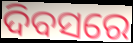
ଦିବସରେ